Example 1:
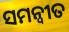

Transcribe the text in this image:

ସମନ୍ଵୀତ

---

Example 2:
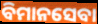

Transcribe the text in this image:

ବିମାନସେବା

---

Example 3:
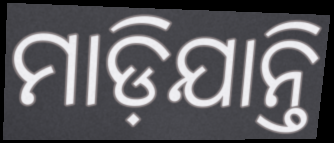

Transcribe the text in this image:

ମାଡ଼ିଯାନ୍ତି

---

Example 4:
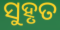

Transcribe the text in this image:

ସୁହୃତ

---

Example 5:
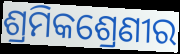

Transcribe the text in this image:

ଶ୍ରମିକଶ୍ରେଣୀର